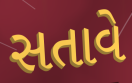
સતાવે